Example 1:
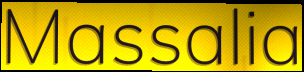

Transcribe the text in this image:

Massalia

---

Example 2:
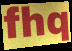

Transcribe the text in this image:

fhq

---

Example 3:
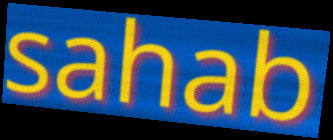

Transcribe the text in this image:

sahab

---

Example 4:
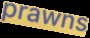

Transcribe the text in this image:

prawns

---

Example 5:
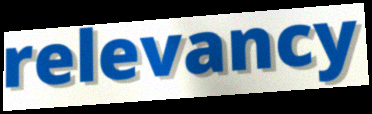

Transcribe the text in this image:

relevancy